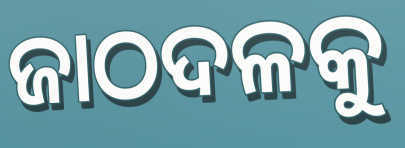
ଜାଠଦଳକୁ